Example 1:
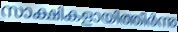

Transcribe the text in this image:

സാക്ഷികളായിത്തീർന്നു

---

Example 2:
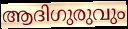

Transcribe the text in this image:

ആദിഗുരുവും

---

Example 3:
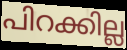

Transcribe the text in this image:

പിറക്കില്ല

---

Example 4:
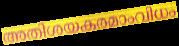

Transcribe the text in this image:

അതിശയകരമാംവിധം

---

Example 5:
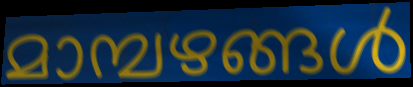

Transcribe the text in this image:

മാമ്പഴങ്ങൾ